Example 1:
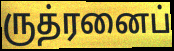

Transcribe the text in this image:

ருத்ரனைப்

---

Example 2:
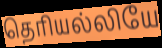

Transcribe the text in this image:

தெரியல்லியே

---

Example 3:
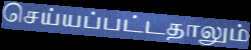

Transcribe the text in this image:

செய்யப்பட்டதாலும்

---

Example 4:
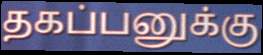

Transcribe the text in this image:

தகப்பனுக்கு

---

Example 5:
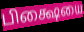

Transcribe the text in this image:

பிக்ஷையை